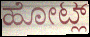
ಹೋಟ್ಲ್